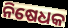
ନିଷେଧକ